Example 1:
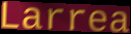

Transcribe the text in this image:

Larrea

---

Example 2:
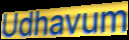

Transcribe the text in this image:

Udhavum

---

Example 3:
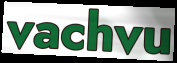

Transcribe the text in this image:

vachvu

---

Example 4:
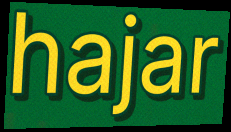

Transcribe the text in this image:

hajar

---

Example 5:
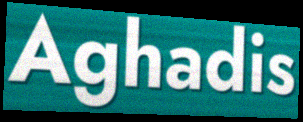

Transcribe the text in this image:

Aghadis